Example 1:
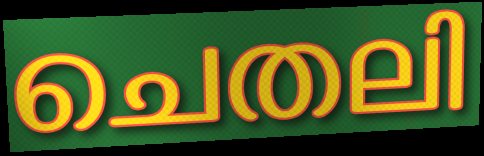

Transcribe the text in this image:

ചെതലി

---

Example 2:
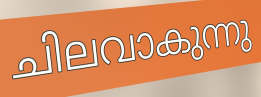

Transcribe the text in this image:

ചിലവാകുന്നു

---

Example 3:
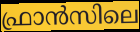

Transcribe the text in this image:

ഫ്രാൻസിലെ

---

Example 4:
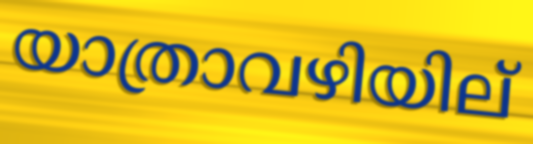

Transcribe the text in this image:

യാത്രാവഴിയില്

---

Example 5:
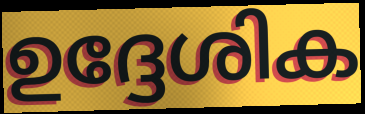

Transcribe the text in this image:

ഉദ്ദേശിക